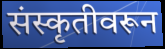
संस्कृतीवरून